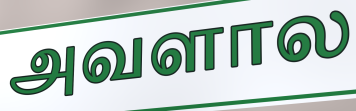
அவளால